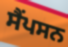
ਸੈਂਪਸਨ